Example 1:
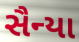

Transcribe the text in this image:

સૈન્યા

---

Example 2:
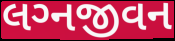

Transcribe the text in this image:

લગ્‍નજીવન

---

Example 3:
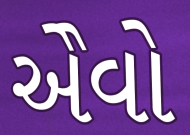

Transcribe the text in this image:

એેવો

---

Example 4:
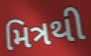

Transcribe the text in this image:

મિત્રથી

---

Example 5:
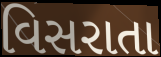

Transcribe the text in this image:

વિસરાતા